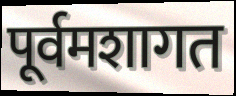
पूर्वमशागत